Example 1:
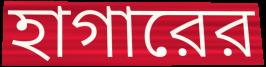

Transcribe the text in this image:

হাগারের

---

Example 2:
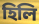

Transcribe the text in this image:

হিলি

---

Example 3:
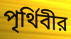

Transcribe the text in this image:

পৃর্থিবীর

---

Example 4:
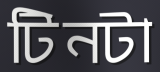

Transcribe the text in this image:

টিনটা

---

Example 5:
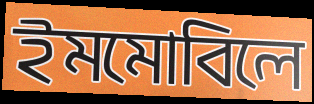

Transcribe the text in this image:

ইমমোবিলে